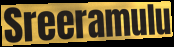
Sreeramulu